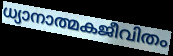
ധ്യാനാത്മകജീവിതം